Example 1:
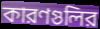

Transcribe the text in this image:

কারণগুলির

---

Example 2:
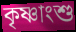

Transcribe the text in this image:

কৃষ্ণাংশু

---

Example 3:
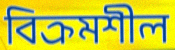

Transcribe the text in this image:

বিক্রমশীল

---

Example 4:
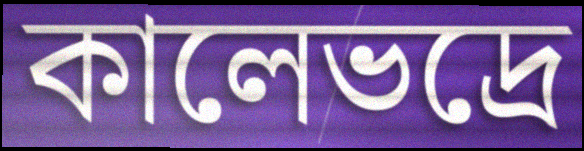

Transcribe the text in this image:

কালেভদ্রে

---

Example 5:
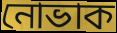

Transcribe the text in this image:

নোভাক